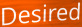
Desired